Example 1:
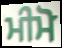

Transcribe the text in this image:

ਮੀਮੋ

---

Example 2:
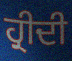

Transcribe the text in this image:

ਹ੍ਰੀਦੀ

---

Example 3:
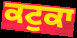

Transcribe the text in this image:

ਕਟੁਕਾ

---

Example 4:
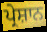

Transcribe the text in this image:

ਪ੍ਰੇਸ਼ਾਨ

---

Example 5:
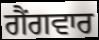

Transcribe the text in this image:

ਗੈਂਗਵਾਰ